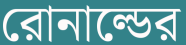
রোনাল্ডের